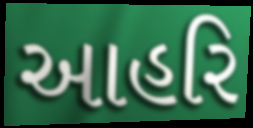
આહરિ